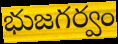
భుజగర్వం